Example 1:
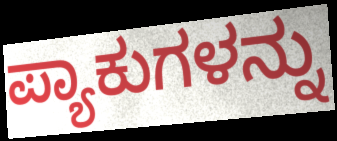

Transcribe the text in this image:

ಪ್ಯಾಕುಗಳನ್ನು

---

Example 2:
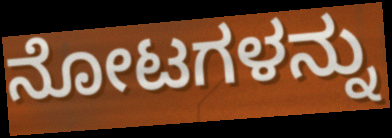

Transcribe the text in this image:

ನೋಟಗಳನ್ನು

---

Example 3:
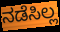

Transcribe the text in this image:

ನಡೆಸಿಲ್ಲ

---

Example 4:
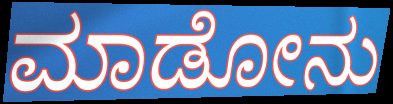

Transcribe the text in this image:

ಮಾಡೋನು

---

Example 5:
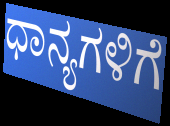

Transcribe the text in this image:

ಧಾನ್ಯಗಳಿಗೆ